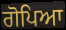
ਗੋਪਿਆ